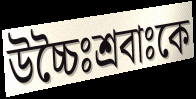
উচ্চৈঃশ্রবাঃকে